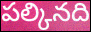
పల్కినది